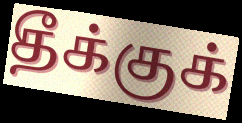
தீக்குக்